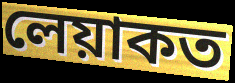
লেয়াকত